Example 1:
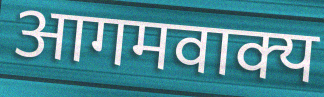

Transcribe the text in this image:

आगमवाक्य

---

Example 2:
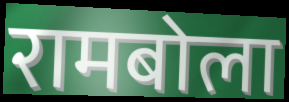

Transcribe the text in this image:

रामबोला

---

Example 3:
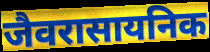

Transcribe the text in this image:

जैवरासायनिक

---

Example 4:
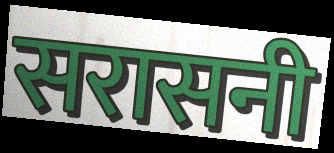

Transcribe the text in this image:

सरासनी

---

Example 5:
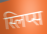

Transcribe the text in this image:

स्लिप्स